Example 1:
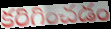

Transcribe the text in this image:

కరిగించడం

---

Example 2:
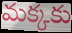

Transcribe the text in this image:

మక్కకు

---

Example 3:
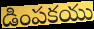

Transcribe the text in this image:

డింపకయు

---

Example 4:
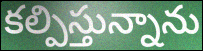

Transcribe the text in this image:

కల్పిస్తున్నాను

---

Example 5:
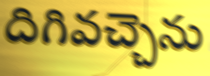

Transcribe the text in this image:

దిగివచ్చెను